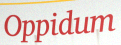
Oppidum